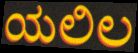
ಯಲಿಲ